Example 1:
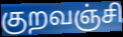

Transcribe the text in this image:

குறவஞ்சி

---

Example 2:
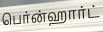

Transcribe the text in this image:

பெர்ன்ஹார்ட்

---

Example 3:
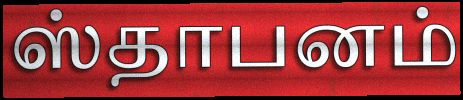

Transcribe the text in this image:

ஸ்தாபனம்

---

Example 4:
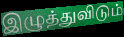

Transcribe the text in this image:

இழுத்துவிடும்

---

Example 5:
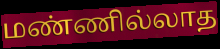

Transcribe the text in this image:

மண்ணில்லாத